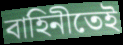
বাহিনীতেই